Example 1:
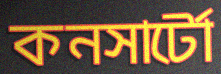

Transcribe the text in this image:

কনসার্টো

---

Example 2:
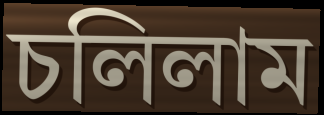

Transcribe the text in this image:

চলিলাম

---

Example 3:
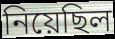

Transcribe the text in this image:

নিয়েছিল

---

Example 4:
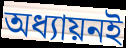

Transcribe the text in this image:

অধ্যায়নই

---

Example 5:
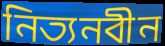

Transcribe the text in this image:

নিত্যনবীন